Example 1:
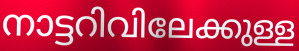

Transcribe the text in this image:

നാട്ടറിവിലേക്കുള്ള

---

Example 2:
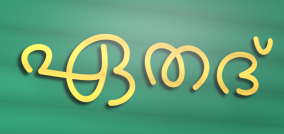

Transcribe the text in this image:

ഏതദ്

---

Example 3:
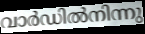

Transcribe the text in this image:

വാർഡിൽനിന്നു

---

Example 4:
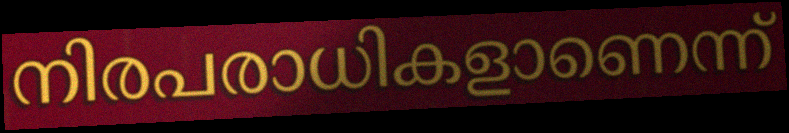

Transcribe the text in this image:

നിരപരാധികളാണെന്ന്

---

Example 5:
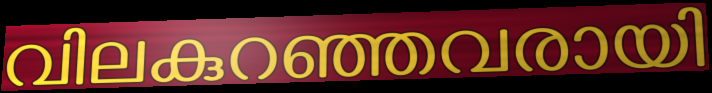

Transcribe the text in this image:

വിലകുറഞ്ഞവരായി